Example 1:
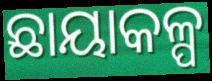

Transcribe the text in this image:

ଛାୟାକଳ୍ପ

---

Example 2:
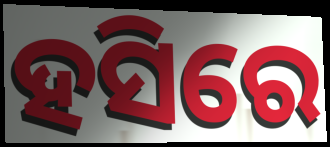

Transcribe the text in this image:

ହସିରେ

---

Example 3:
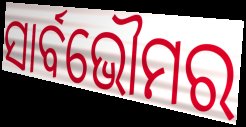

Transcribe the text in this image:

ସାର୍ବଭୌମର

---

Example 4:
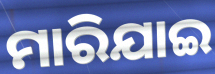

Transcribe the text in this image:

ମାରିଯାଇ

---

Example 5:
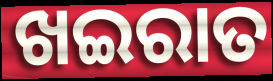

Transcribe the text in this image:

ଖଇରାତ